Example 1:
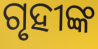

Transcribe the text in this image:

ଗୃହୀଙ୍କ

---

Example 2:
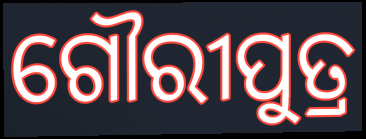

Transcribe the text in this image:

ଗୌରୀପୁତ୍ର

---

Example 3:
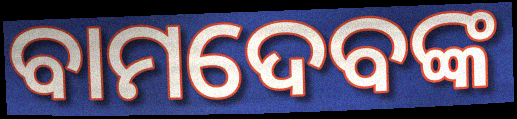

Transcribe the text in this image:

ବାମଦେବଙ୍କ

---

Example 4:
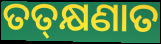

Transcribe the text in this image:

ତତ୍‌କ୍ଷଣାତ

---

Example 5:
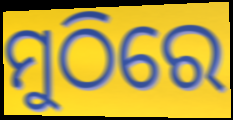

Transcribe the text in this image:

ମୁଠିରେ